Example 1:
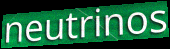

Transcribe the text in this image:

neutrinos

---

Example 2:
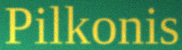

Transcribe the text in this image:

Pilkonis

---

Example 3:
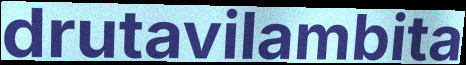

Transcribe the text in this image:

drutavilambita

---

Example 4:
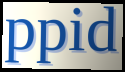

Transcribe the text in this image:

ppid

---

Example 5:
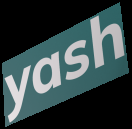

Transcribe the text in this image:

yash